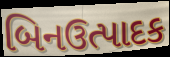
બિનઉત્પાદક